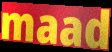
maad